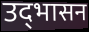
उद्भासन